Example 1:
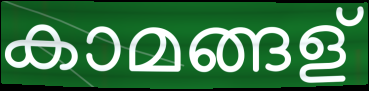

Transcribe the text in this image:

കാമങ്ങള്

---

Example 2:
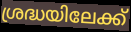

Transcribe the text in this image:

ശ്രദ്ധയിലേക്ക്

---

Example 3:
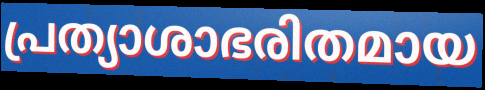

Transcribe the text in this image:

പ്രത്യാശാഭരിതമായ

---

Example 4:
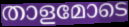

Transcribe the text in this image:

താളമോടെ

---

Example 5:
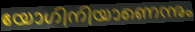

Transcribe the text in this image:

യോഗിനിയാണെന്നും